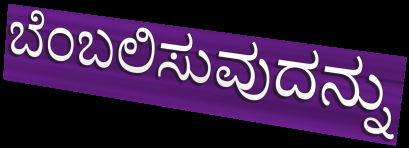
ಬೆಂಬಲಿಸುವುದನ್ನು